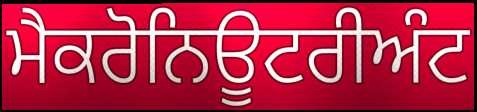
ਮੈਕਰੋਨਿਊਟਰੀਅੰਟ